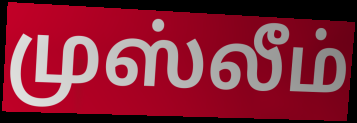
முஸ்லீம்